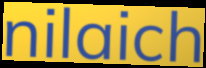
nilaich